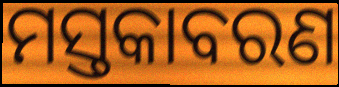
ମସ୍ତକାବରଣ